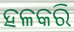
ହଳକରି